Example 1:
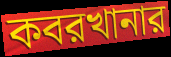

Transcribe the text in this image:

কবরখানার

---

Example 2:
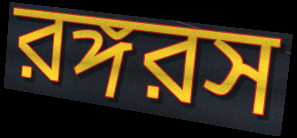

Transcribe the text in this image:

রঙ্গরস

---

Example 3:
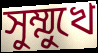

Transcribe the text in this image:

সুম্মুখে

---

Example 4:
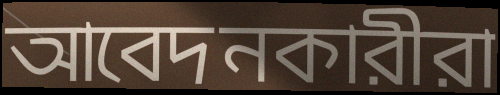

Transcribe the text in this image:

আবেদনকারীরা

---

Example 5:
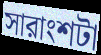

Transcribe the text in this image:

সারাংশটা